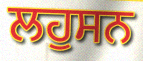
ਲਹੁਸਨ